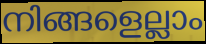
നിങ്ങളെല്ലാം